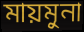
মায়মুনা